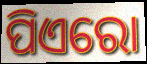
ପିଏରୋ